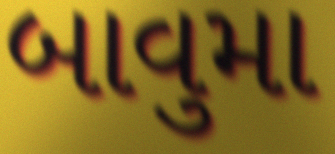
બાવુમા